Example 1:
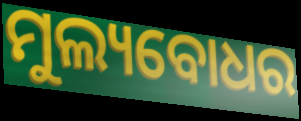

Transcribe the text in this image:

ମୁଲ୍ୟବୋଧର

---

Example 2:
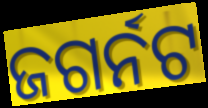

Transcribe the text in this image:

ଜଗର୍ନଟ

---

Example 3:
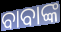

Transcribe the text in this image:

ବାବାଙ୍କ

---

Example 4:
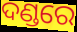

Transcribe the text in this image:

ଦଣ୍ଡରେ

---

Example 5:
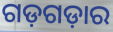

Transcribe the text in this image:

ଗଡ଼ଗଡ଼ାର